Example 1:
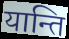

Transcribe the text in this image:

यान्ति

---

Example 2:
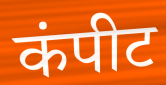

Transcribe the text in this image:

कंपीट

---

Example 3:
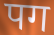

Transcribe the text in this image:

पग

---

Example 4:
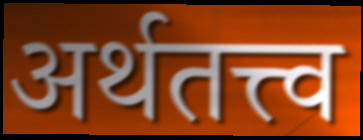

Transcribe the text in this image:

अर्थतत्त्व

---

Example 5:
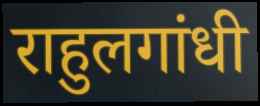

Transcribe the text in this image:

राहुलगांधी